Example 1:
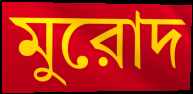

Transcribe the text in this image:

মুরোদ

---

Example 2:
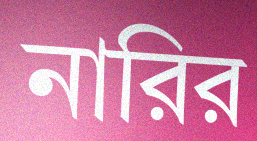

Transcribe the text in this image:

নারির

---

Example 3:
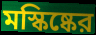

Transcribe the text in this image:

মস্কিষ্কের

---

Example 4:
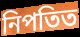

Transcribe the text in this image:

নিপতিত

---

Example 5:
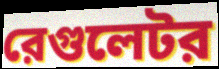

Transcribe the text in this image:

রেগুলেটর